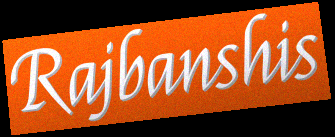
Rajbanshis